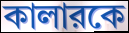
কালারকে